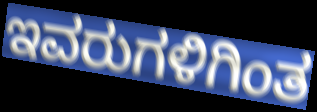
ಇವರುಗಳಿಗಿಂತ